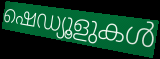
ഷെഡ്യൂളുകൾ